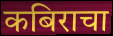
कबिराचा